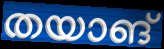
തയാങ്